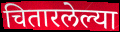
चितारलेल्या